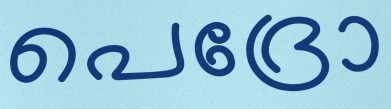
പെദ്രോ